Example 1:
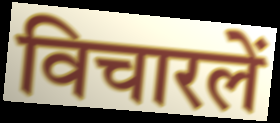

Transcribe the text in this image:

विचारलें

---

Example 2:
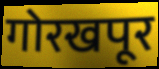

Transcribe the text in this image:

गोरखपूर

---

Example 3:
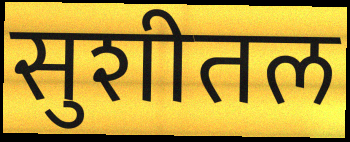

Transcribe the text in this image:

सुशीतल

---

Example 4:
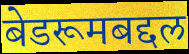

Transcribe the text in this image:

बेडरूमबद्दल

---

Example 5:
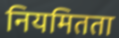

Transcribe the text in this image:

नियमितता